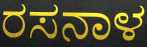
ರಸನಾಳ